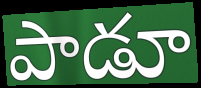
పాడూ